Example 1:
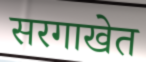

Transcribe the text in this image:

सरगाखेत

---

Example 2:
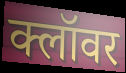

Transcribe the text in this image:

क्लॉवर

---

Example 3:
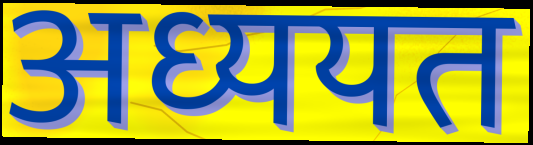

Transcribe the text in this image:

अध्ययत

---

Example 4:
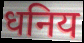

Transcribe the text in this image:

धनिय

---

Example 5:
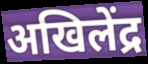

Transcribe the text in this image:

अखिलेंद्र